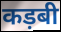
कड़बी